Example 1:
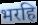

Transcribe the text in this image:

भरहि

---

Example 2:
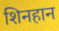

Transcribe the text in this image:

शिनहान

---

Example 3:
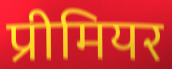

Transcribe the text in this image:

प्रीमियर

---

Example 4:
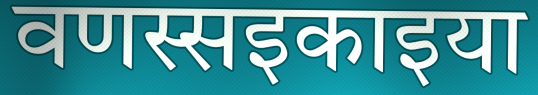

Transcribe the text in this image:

वणस्सइकाइया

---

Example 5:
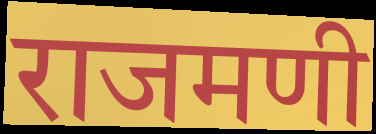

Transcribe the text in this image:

राजमणी